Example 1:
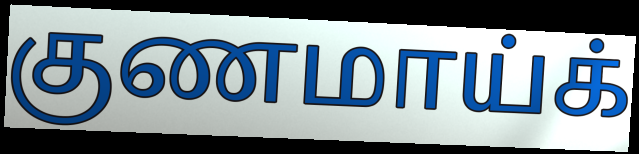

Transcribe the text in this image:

குணமாய்க்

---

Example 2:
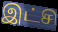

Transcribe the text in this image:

இட்சி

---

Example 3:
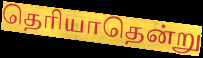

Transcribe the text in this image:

தெரியாதென்று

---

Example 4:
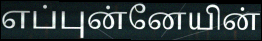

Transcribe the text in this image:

எப்புன்னேயின்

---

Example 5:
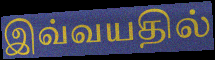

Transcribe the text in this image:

இவ்வயதில்